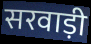
सरवाड़ी